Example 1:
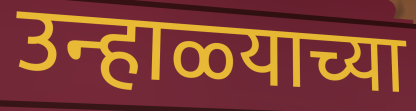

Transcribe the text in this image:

उन्हाळ्याच्या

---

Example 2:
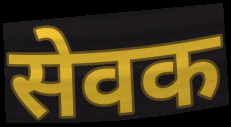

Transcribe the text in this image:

सेवक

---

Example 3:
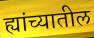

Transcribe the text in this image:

ह्यांच्यातील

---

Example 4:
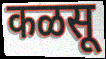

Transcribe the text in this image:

कळसू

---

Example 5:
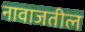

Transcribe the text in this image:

नावाजतील